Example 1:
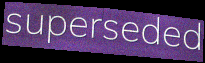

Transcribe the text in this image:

superseded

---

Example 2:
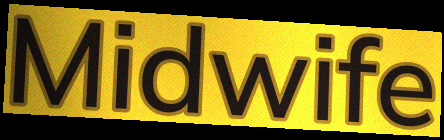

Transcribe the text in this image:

Midwife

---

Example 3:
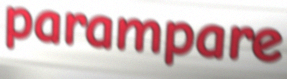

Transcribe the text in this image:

parampare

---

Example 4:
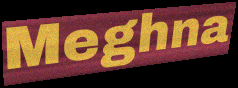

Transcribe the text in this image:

Meghna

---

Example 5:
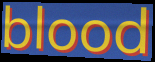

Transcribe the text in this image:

blood